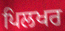
ਪਿਲਖਰ